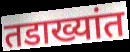
तडाख्यांत